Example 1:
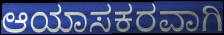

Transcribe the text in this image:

ಆಯಾಸಕರವಾಗಿ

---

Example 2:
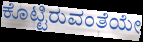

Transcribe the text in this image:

ಕೊಟ್ಟಿರುವಂತೆಯೇ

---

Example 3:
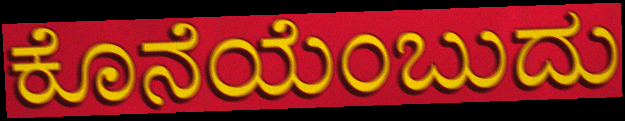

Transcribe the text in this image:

ಕೊನೆಯೆಂಬುದು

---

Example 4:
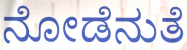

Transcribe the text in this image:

ನೋಡೆನುತೆ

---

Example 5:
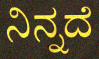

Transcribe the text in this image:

ನಿನ್ನದೆ